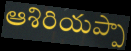
ఆశిరియప్పా